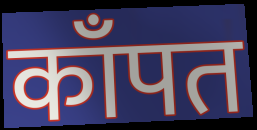
काँपत